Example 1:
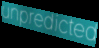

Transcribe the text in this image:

unpredicted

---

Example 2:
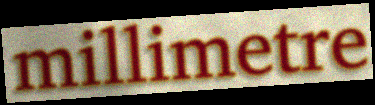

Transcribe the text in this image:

millimetre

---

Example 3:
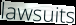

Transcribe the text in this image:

lawsuits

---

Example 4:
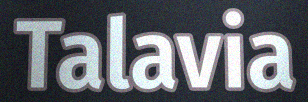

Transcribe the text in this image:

Talavia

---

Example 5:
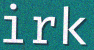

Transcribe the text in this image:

irk